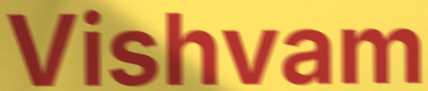
Vishvam